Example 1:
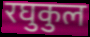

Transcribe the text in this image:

रघुकुल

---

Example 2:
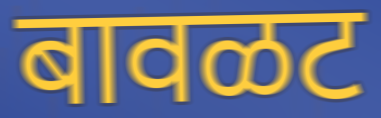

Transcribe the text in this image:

बावळट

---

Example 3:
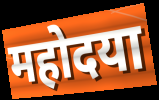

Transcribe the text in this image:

महोदया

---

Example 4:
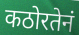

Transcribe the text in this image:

कठोरतेनं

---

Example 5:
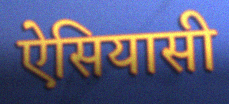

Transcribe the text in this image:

ऐसियासी